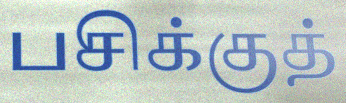
பசிக்குத்